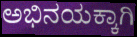
ಅಭಿನಯಕ್ಕಾಗಿ